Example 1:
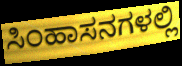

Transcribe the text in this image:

ಸಿಂಹಾಸನಗಳಲ್ಲಿ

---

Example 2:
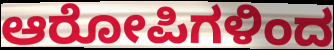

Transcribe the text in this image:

ಆರೋಪಿಗಳಿಂದ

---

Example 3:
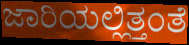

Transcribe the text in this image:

ಜಾರಿಯಲ್ಲಿತ್ತಂತೆ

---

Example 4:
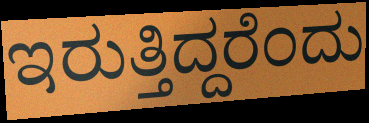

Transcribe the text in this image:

ಇರುತ್ತಿದ್ದರೆಂದು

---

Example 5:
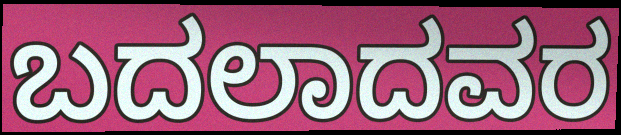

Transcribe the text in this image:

ಬದಲಾದವರ